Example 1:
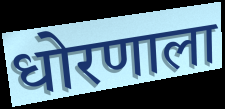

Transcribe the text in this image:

धोरणाला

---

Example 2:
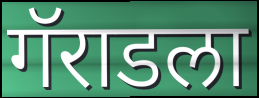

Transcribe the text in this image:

गॅराडला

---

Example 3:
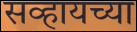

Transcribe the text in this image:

सव्हायच्या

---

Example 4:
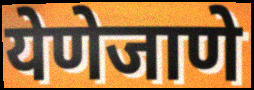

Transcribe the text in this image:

येणेजाणे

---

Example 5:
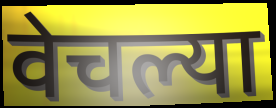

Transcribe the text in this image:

वेचल्या